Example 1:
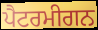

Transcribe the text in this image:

ਪੈਟਰਮੀਗਨ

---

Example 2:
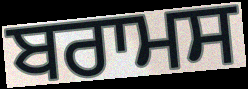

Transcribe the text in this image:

ਬਰਾਮਸ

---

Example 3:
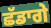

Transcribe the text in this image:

ਛੱਡਾਗੇ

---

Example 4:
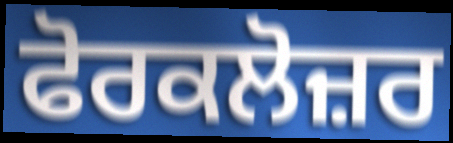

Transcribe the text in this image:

ਫੋਰਕਲੋਜ਼ਰ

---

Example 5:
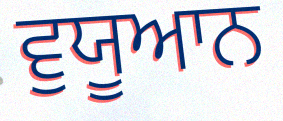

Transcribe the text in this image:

ਵੁਯੂਆਨ